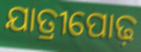
ଯାତ୍ରୀପୋଢ଼